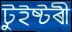
টুইষ্টৰী